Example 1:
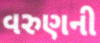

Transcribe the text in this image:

વરુણની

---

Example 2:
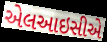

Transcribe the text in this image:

એલઆઇસીએ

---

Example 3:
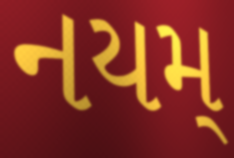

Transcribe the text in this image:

નયમ્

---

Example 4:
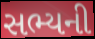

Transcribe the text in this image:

સભ્યની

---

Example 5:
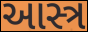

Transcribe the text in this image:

આસ્ત્ર